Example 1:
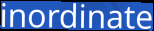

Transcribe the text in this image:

inordinate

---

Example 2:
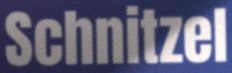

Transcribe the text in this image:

Schnitzel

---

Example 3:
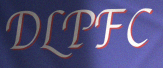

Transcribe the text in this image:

DLPFC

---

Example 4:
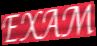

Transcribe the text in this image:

EXAM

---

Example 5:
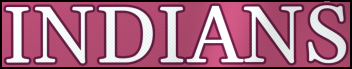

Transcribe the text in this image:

INDIANS